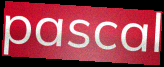
pascal